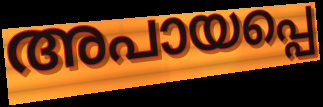
അപായപ്പെ